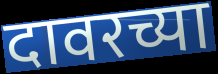
दावरच्या